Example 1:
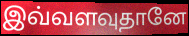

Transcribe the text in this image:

இவ்வளவுதானே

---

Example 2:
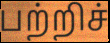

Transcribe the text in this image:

பற்றிச்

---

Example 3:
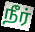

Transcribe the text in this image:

நீர்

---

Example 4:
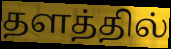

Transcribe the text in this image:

தளத்தில்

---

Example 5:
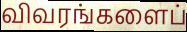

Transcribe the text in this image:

விவரங்களைப்